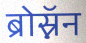
ब्रोस्नॅन